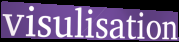
visulisation